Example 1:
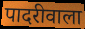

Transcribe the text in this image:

पादरीवाला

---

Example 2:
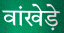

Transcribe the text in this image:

वांखेड़े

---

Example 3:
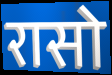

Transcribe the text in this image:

रासो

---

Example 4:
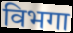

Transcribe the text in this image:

विभगा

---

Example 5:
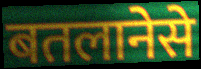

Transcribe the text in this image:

बतलानेसे